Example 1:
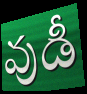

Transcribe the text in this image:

వుడీ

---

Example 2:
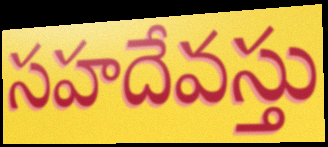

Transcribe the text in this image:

సహదేవస్తు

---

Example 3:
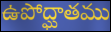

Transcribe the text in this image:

ఉపోద్ఘాతము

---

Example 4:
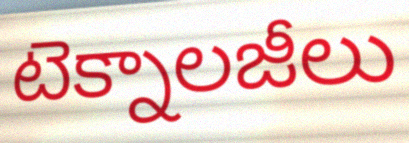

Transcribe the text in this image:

టెక్నాలజీలు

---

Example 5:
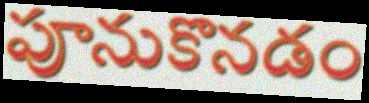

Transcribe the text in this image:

పూనుకొనడం